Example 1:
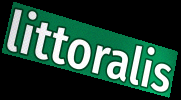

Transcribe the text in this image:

littoralis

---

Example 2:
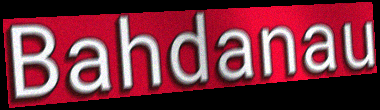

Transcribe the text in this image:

Bahdanau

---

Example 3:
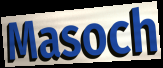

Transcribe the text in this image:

Masoch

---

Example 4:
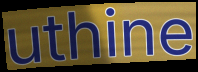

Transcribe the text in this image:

uthine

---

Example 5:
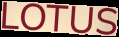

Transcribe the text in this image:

LOTUS